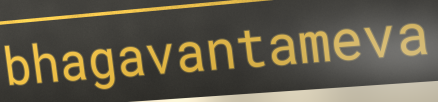
bhagavantameva